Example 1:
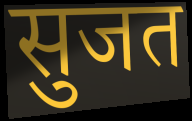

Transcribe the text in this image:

सुजत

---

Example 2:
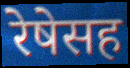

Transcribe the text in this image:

रेषेसह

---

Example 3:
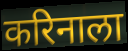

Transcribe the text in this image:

करिनाला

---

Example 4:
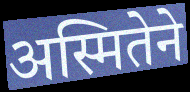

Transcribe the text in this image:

अस्मितेने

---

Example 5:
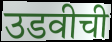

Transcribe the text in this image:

उडवीची